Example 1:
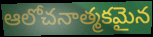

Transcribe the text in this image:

ఆలోచనాత్మకమైన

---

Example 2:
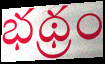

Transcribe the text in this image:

భథ్రం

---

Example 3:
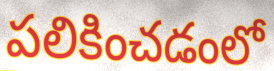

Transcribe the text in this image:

పలికించడంలో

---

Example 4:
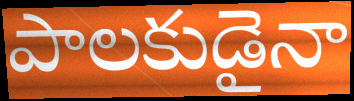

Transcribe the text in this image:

పాలకుడైనా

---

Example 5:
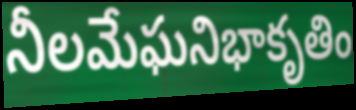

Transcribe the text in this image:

నీలమేఘనిభాకృతిం